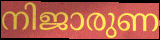
നിജാരുണ